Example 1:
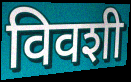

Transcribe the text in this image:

विवशी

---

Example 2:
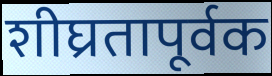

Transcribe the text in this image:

शीघ्रतापूर्वक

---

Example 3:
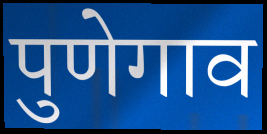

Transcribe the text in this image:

पुणेगाव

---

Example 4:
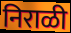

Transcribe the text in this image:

निराळी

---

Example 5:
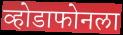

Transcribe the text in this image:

व्होडाफोनला